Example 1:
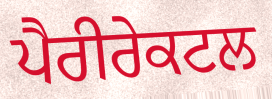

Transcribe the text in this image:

ਪੈਰੀਰੇਕਟਲ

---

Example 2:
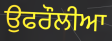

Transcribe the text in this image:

ਉਫਰੌਲੀਆ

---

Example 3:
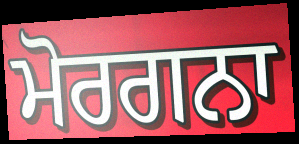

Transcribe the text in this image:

ਮੋਰਗਨਾ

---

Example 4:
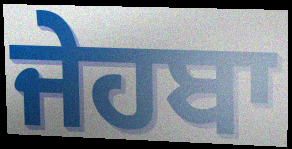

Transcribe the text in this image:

ਜੇਹਬਾ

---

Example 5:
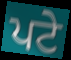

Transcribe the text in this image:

ਪਟੇ